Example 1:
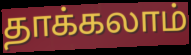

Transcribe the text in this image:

தாக்கலாம்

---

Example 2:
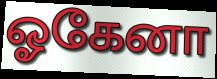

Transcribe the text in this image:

ஓகேனா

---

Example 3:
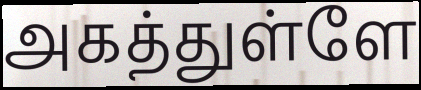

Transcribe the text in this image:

அகத்துள்ளே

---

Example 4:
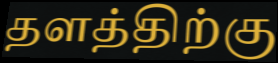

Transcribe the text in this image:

தளத்திற்கு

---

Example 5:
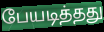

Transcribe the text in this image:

பேயடித்தது